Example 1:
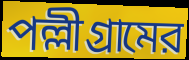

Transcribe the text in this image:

পল্লীগ্রামের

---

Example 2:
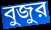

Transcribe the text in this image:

বুজুর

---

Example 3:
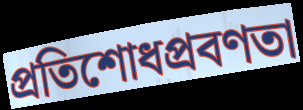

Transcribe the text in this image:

প্রতিশোধপ্রবণতা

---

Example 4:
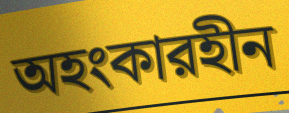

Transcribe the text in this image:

অহংকারহীন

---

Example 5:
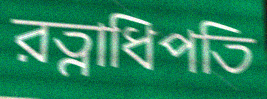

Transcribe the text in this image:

রত্নাধিপতি